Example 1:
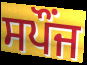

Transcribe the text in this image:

ਸਪੌਂਜ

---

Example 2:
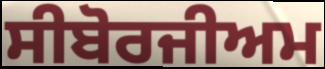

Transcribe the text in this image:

ਸੀਬੋਰਜੀਅਮ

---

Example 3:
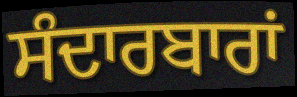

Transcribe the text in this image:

ਸੰਦਾਰਬਾਰਾਂ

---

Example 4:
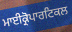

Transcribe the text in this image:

ਮਾਈਕ੍ਰੋਪਾਰਟਿਕਲ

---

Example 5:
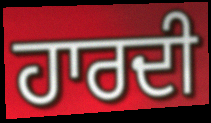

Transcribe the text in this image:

ਹਾਰਦੀ